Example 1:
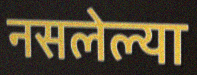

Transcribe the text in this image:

नसलेल्या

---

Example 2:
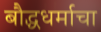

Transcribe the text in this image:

बौद्धधर्माचा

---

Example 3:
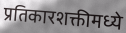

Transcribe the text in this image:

प्रतिकारशक्तीमध्ये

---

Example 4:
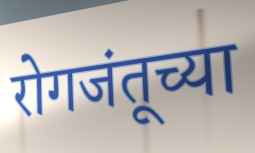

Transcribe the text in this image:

रोगजंतूच्या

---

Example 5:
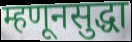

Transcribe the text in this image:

म्हणूनसुद्धा